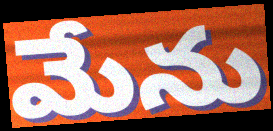
మేను